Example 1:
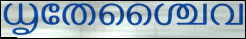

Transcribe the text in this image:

ധൃതേശ്ചൈവ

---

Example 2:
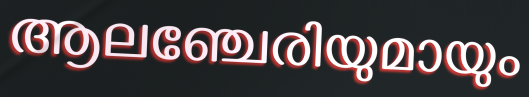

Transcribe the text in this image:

ആലഞ്ചേരിയുമായും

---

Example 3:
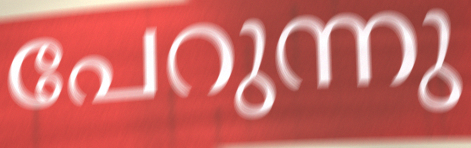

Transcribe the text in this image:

പേറുന്നു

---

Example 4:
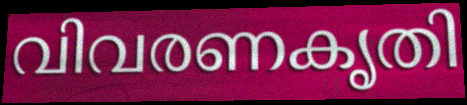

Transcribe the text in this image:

വിവരണകൃതി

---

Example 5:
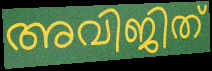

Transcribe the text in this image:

അവിജിത്